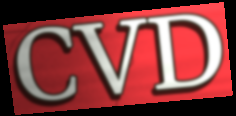
CVD